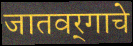
जातवर्गाचे